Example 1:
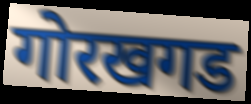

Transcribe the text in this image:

गोरखगड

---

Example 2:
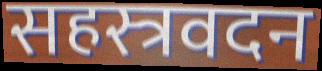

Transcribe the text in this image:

सहस्त्रवदन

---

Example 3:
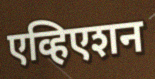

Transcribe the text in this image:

एव्हिएशन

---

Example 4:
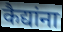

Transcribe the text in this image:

कैद्यांना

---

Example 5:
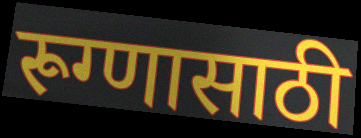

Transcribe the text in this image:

रूग्णासाठी